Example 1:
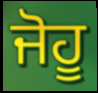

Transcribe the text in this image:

ਜੋਹੂ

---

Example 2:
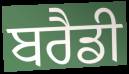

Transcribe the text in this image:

ਬਰੈਡੀ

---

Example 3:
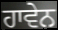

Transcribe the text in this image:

ਹਾਵੇਨ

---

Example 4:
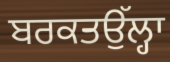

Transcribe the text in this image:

ਬਰਕਤਉੱਲ੍ਹਾ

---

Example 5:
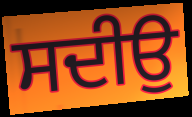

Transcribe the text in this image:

ਸਦੀਉ